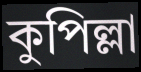
কুপিল্লা